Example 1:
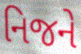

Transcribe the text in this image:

નિજને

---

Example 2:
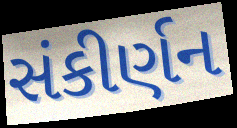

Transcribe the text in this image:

સંકીર્ણન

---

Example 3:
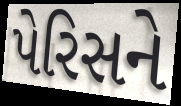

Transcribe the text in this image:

પેરિસને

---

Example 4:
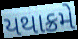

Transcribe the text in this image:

યથાક્રમે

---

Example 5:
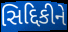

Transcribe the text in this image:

સિદ્દિકીને